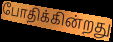
போதிக்கின்றது